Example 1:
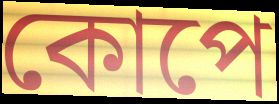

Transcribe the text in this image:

কোপে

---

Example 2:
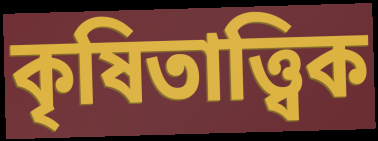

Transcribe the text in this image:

কৃষিতাত্ত্বিক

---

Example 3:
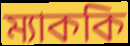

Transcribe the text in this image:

ম্যাককি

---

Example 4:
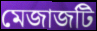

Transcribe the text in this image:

মেজাজটি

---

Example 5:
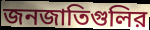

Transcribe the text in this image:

জনজাতিগুলির